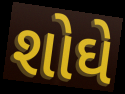
શોઘે